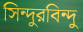
সিন্দুরবিন্দু